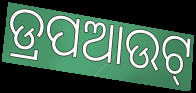
ଡ୍ରପଆଉଟ୍